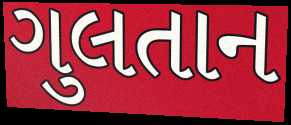
ગુલતાન